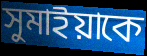
সুমাইয়াকে